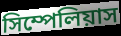
সিম্পেলিয়াস